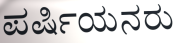
ಪರ್ಷಿಯನರು